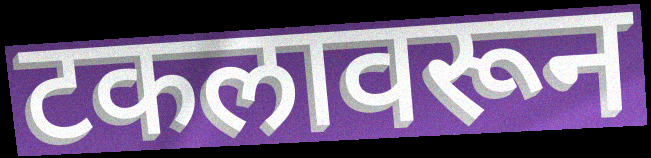
टकलावरून